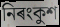
নিৰংকুশ